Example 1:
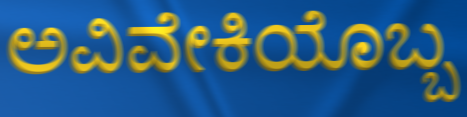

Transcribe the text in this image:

ಅವಿವೇಕಿಯೊಬ್ಬ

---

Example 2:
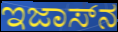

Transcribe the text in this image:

ಇಜಾಸ್‌ನ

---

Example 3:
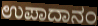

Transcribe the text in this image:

ಉಪಾದಾನಂ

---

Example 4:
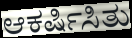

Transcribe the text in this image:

ಆಕರ್ಷಿಸಿತು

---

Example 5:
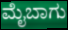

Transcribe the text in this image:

ಮೈಬಾಗು